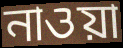
নাওয়া